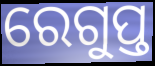
ରେଗୁପ୍ତ